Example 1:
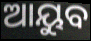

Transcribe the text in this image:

ଆୟୁବ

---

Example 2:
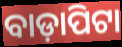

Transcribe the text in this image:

ବାଡ଼ାପିଟା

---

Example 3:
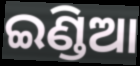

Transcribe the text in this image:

ଇଣ୍ଡିଆ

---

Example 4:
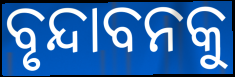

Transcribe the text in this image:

ବୃନ୍ଦାବନକୁ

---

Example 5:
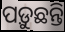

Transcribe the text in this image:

ପଡ଼ୁଛନ୍ତି